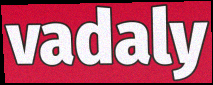
vadaly